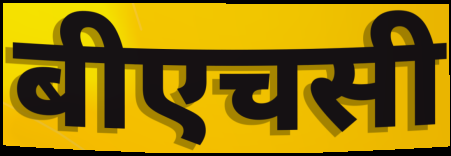
बीएचसी